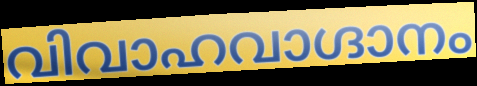
വിവാഹവാഗ്ദാനം